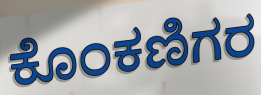
ಕೊಂಕಣಿಗರ